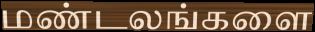
மண்டலங்களை